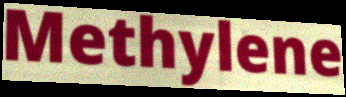
Methylene